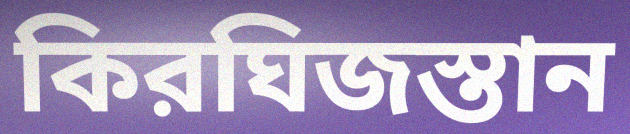
কিরঘিজস্তান